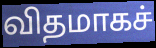
விதமாகச்